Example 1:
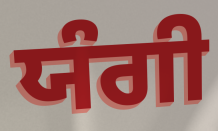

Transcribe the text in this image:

ਯੰਗੀ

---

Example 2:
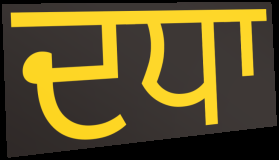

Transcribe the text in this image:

ਦਧਾ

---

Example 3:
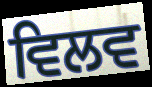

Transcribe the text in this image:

ਵਿਲਵ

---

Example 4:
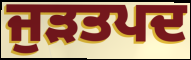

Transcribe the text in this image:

ਜੁੜਤਪਦ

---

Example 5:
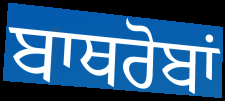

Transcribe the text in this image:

ਬਾਥਰੋਬਾਂ